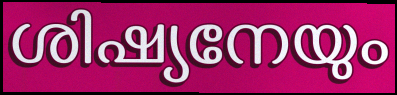
ശിഷ്യനേയും